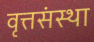
वृत्तसंस्था